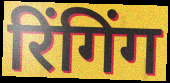
रिंगिंग